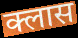
क्लास